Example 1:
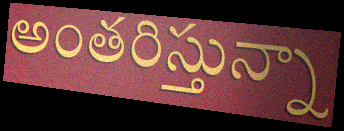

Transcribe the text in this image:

అంతరిస్తున్నా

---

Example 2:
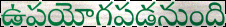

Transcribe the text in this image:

ఉపయోగపడనుంది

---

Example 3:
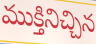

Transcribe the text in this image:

ముక్తినిచ్చిన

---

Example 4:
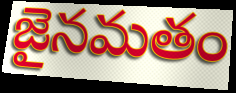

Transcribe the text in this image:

జైనమతం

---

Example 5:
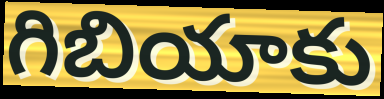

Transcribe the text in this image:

గిబియాకు